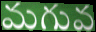
మగువ